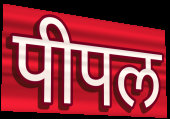
पीपल